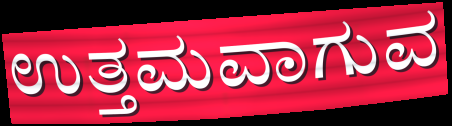
ಉತ್ತಮವಾಗುವ